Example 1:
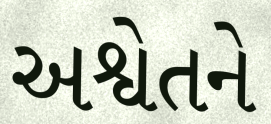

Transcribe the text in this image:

અશ્વેતને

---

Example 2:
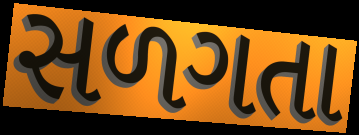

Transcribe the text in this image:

સળગતા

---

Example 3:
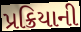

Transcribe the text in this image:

પ્રક્રિયાની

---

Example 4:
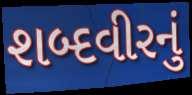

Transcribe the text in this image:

શબ્દવીરનું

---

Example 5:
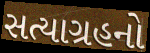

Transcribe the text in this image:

સત્યાગ્રહનો